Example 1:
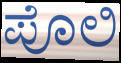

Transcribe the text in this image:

ಪೊಲಿ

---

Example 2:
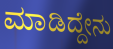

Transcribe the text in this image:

ಮಾಡಿದ್ದೇನು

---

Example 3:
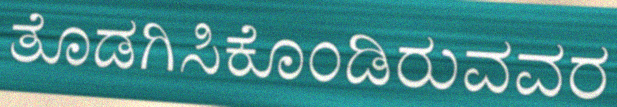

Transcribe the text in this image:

ತೊಡಗಿಸಿಕೊಂಡಿರುವವರ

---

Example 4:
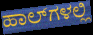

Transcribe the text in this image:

ಹಾಲ್‌ಗಳಲ್ಲಿ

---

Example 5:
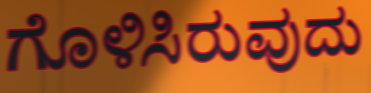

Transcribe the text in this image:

ಗೊಳಿಸಿರುವುದು